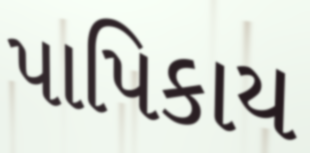
પાપિકાય